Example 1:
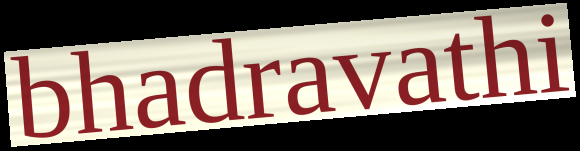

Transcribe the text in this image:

bhadravathi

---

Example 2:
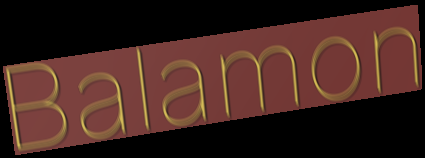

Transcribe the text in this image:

Balamon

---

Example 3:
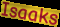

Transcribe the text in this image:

Isaaks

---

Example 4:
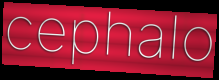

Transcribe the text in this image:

cephalo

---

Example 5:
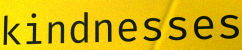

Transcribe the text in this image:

kindnesses